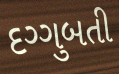
દગ્ગુબતી